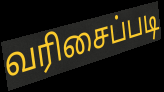
வரிசைப்படி